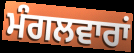
ਮੰਗਲਵਾਰਾਂ